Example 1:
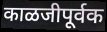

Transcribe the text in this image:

काळजीपूर्वक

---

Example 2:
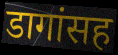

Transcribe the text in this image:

डागांसह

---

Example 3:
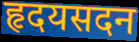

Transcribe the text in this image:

हृदयसदन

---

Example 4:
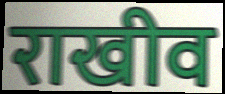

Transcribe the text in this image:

राखीव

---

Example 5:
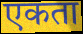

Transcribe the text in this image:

एकता